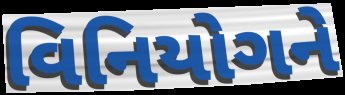
વિનિયોગને